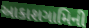
આકાશગામિની